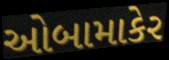
ઓબામાકેર